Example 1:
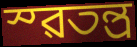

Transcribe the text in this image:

স্ৱতন্ত্ৰ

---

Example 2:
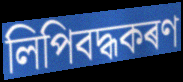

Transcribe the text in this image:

লিপিবদ্ধকৰণ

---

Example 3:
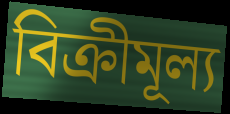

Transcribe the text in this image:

বিক্ৰীমূল্য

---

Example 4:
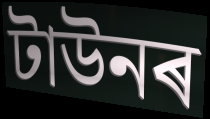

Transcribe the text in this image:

টাউনৰ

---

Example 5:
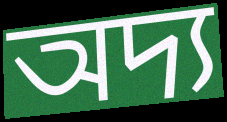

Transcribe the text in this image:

অদ্য